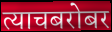
त्याचबरोबर